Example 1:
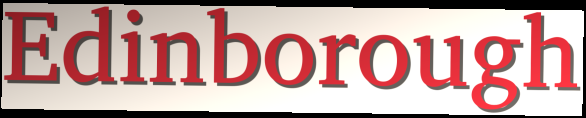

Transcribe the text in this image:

Edinborough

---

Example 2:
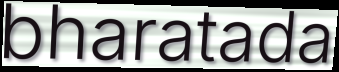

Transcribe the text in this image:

bharatada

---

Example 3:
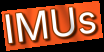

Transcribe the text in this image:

IMUs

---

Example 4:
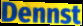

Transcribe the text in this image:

Dennst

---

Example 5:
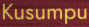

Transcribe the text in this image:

Kusumpu